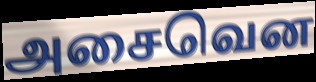
அசைவென